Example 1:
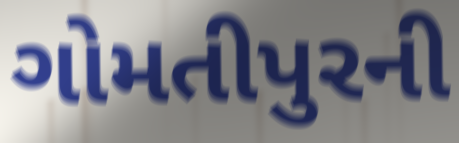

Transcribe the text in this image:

ગોમતીપુરની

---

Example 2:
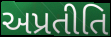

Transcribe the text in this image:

અપ્રતીતિ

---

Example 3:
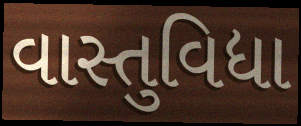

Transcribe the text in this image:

વાસ્તુવિદ્યા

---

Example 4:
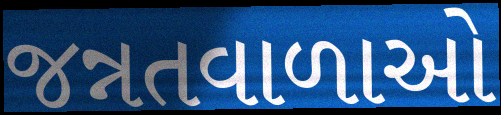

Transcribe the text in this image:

જન્નતવાળાઓ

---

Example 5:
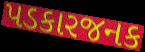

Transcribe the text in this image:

પડકારજનક